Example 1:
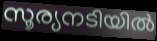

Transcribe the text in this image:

സൂര്യനടിയിൽ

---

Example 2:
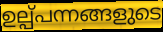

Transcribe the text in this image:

ഉല്പ്പന്നങ്ങളുടെ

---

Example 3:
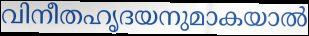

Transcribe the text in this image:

വിനീതഹൃദയനുമാകയാൽ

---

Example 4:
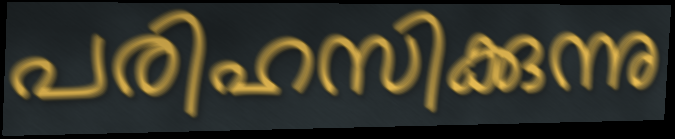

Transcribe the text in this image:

പരിഹസിക്കുന്നു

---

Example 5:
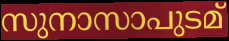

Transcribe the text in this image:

സുനാസാപുടമ്